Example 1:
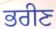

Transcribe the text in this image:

ਭਰੀਣ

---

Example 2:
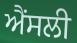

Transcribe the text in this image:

ਐਂਸਲੀ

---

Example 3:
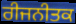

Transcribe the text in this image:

ਰੀਜਨੀਤਕ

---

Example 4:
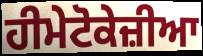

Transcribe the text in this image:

ਹੀਮੇਟੋਕੇਜ਼ੀਆ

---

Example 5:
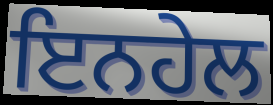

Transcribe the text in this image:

ਇਨਹੇਲ